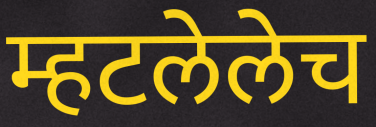
म्हटलेलेच